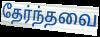
தேர்ந்தவை